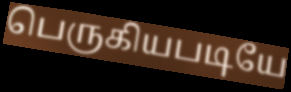
பெருகியபடியே